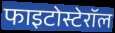
फाइटोस्टेरॉल